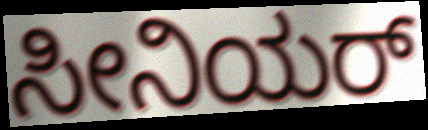
ಸೀನಿಯರ್